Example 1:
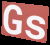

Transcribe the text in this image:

Gs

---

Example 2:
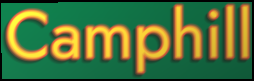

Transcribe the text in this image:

Camphill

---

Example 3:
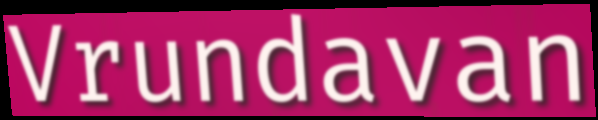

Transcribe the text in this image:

Vrundavan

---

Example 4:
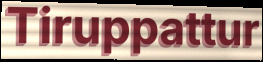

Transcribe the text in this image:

Tiruppattur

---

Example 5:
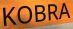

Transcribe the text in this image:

KOBRA